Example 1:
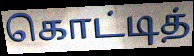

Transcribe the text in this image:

கொட்டித்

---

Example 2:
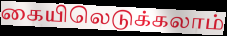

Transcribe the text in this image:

கையிலெடுக்கலாம்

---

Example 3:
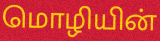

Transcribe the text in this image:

மொழியின்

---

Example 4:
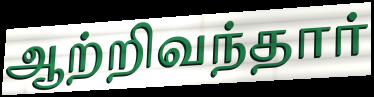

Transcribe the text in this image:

ஆற்றிவந்தார்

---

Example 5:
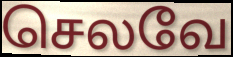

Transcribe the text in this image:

செலவே